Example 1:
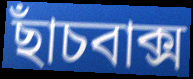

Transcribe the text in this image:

ছাঁচবাক্স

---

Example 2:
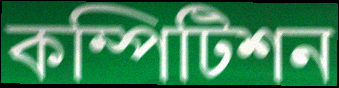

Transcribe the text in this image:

কম্পিটিশন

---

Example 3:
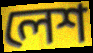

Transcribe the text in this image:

লেশ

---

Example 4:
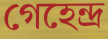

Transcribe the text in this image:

গেহেন্দ্র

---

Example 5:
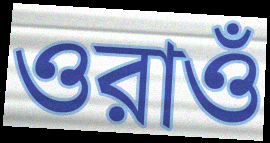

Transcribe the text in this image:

ওরাওঁ